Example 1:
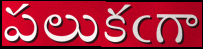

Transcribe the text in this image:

పలుకఁగా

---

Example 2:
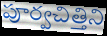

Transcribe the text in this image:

పూర్వచిత్తిని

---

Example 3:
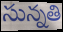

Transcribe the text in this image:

సున్నతి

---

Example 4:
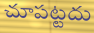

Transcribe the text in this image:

చూపట్టదు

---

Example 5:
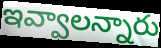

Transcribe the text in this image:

ఇవ్వాలన్నారు